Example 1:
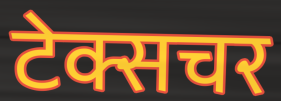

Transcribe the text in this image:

टेक्सचर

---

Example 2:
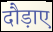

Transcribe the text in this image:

दौड़ाए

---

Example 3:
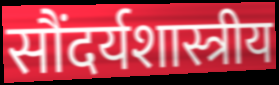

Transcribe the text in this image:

सौंदर्यशास्त्रीय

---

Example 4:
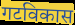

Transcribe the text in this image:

गटविकास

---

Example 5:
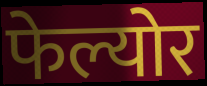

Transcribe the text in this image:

फेल्योर